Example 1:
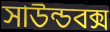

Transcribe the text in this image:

সাউন্ডবক্স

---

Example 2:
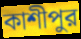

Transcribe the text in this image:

কাশীপুর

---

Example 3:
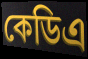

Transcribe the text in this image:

কেডিএ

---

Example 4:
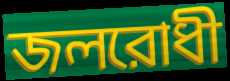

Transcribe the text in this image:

জলরোধী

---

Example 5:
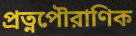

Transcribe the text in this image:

প্রত্নপৌরাণিক